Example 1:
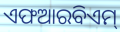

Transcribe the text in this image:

ଏଫଆରବିଏମ୍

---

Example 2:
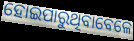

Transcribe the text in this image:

ହୋଇପାରୁଥିବାବେଳେ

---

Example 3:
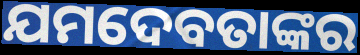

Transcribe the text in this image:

ଯମଦେବତାଙ୍କର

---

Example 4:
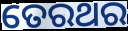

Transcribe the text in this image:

ତେରଥର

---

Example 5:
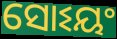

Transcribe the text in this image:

ସୋଽୟଂ